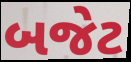
બજેટ